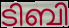
ടിബി